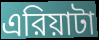
এরিয়াটা